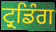
ਟ੍ਰਡਿੰਗ